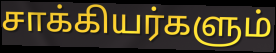
சாக்கியர்களும்